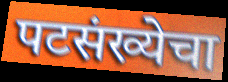
पटसंख्येचा